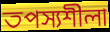
তপস্যশীলা